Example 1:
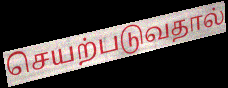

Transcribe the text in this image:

செயற்படுவதால்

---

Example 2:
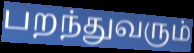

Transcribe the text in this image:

பறந்துவரும்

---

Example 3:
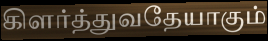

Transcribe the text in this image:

கிளர்த்துவதேயாகும்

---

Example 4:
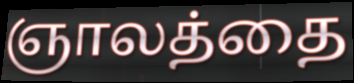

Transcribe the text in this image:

ஞாலத்தை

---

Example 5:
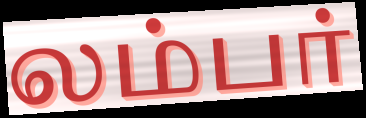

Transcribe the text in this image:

லம்பர்